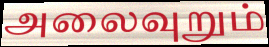
அலைவுறும்